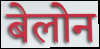
बेलोन